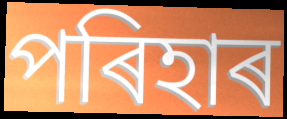
পৰিহাৰ